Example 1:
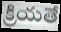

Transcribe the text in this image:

క్రియతే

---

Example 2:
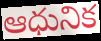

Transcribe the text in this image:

ఆధునిక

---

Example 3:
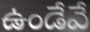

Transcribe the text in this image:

ఉండేవే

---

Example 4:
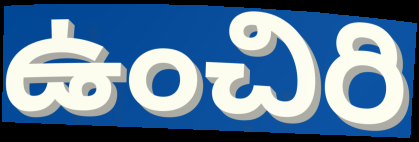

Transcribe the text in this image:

ఉంచిరి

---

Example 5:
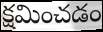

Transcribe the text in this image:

క్షమించడం